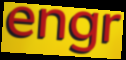
engr